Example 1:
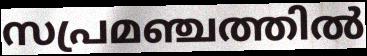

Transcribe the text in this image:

സപ്രമഞ്ചത്തിൽ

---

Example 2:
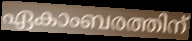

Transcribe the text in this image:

ഏകാംബരത്തിന്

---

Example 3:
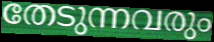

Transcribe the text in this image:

തേടുന്നവരും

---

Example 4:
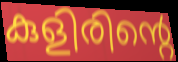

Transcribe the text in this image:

കുളിരിന്റെ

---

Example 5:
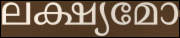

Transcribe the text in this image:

ലക്ഷ്യമോ